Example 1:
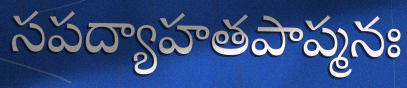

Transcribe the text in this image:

సపద్యాహతపాప్మనః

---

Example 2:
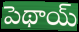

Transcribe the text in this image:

పెథాయ్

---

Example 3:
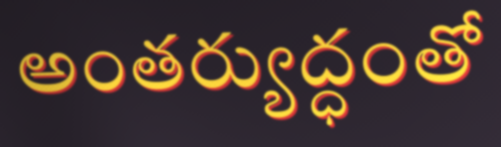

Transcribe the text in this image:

అంతర్యుద్ధంతో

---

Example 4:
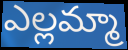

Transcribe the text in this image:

ఎల్లమ్మా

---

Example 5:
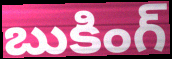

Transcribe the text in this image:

బుకింగ్